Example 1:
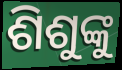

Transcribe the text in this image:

ଶିଶୁଙ୍କୁ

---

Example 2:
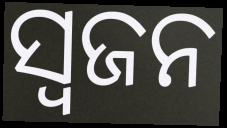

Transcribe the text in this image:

ସ୍ୱଜନ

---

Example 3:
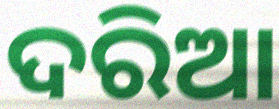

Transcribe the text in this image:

ଦରିଆ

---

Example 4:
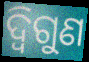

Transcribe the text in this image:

ଦ୍ୱିଗୁଣ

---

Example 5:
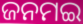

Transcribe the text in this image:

ଜନମଇ